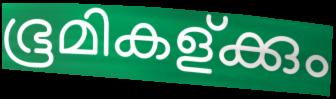
ഭൂമികള്ക്കും